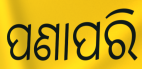
ପଣାପରି